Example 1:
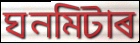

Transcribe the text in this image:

ঘনমিটাৰ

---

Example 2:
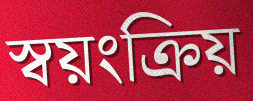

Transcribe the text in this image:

স্বয়ংক্ৰিয়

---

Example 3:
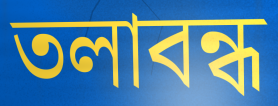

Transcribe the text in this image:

তলাবন্ধ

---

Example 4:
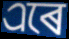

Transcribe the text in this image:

এৰে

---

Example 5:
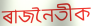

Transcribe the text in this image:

ৰাজনৈতীক